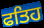
ਫਤਿਹ